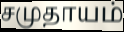
சமுதாயம்